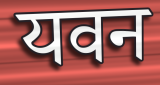
यवन